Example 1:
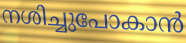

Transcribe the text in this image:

നശിച്ചുപോകാൻ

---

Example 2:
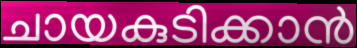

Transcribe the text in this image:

ചായകുടിക്കാൻ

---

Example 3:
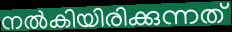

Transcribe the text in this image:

നൽകിയിരിക്കുന്നത്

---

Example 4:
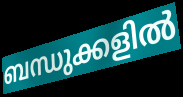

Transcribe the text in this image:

ബന്ധുക്കളിൽ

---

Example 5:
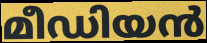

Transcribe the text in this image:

മീഡിയൻ